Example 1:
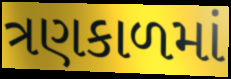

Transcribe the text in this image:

ત્રણકાળમાં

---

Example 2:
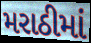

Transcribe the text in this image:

મરાઠીમાં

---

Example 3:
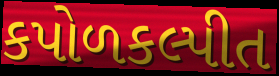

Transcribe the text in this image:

કપોળકલ્પીત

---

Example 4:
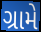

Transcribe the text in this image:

ગ્રામે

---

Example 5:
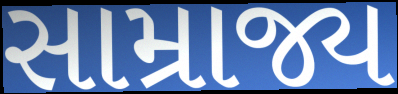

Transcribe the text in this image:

સામ્રાજ્ય